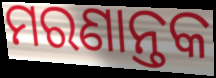
ମରଣାନ୍ତକ